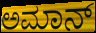
ಅಮಾನ್